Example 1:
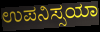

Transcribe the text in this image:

ಉಪನಿಸ್ಸಯಾ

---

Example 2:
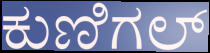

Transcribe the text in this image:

ಕುಣಿಗಲ್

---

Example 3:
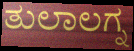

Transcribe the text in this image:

ತುಲಾಲಗ್ನ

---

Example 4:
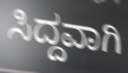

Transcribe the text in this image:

ಸಿದ್ದವಾಗಿ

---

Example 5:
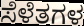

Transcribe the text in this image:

ಸೆಳೆತಗಳ